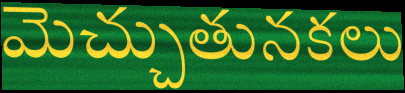
మెచ్చుతునకలు